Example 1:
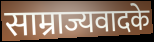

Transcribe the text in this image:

साम्राज्यवादके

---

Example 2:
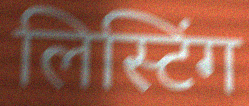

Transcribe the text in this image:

लिस्‍टिंग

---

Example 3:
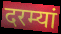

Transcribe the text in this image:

दरम्यां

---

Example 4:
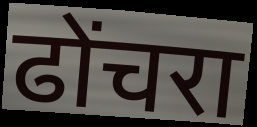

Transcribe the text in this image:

ढोंचरा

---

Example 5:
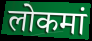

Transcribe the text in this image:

लोकमां